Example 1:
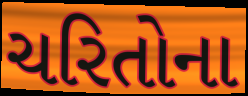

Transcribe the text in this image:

ચરિતોના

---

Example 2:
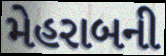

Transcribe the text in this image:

મેહરાબની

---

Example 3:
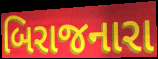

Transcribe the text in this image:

બિરાજનારા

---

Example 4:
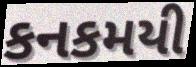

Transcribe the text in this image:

કનકમયી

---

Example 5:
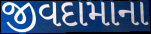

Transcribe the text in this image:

જીવદામાના